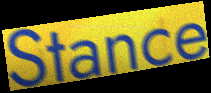
Stance